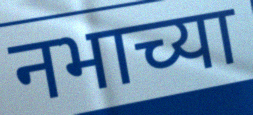
नभाच्या